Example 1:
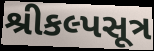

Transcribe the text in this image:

શ્રીકલ્પસૂત્ર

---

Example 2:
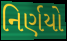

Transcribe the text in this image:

નિર્ણયો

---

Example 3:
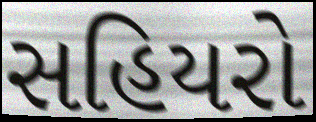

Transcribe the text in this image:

સહિયરો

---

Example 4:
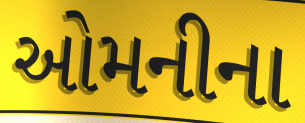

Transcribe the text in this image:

ઓમનીના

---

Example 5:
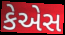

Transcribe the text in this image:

કેએસ